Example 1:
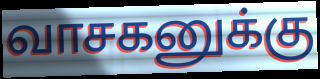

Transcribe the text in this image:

வாசகனுக்கு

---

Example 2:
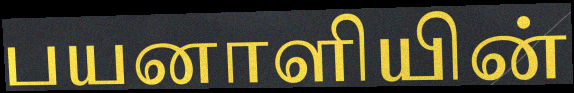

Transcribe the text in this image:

பயனாளியின்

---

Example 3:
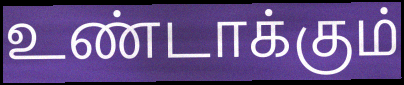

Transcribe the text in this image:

உண்டாக்கும்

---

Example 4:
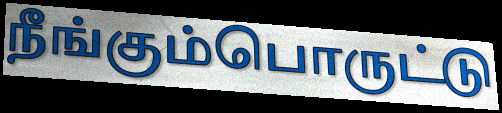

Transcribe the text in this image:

நீங்கும்பொருட்டு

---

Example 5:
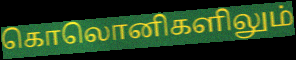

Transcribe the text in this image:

கொலொனிகளிலும்